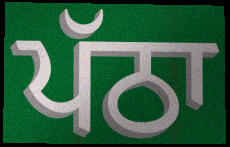
ਪੱਠਾ